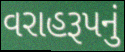
વરાહરૂપનું